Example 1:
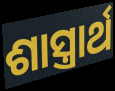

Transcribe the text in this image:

ଶାସ୍ତ୍ରାର୍ଥ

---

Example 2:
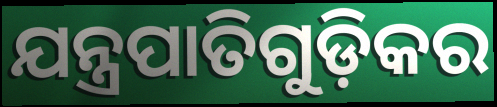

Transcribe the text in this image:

ଯନ୍ତ୍ରପାତିଗୁଡ଼ିକର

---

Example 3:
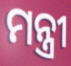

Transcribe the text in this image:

ମନ୍ତ୍ରୀ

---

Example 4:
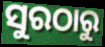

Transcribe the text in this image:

ସୁରଠାରୁ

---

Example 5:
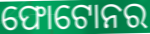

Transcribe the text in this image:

ଫୋଟୋନର